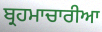
ਬ੍ਰਹਮਾਚਾਰੀਆ